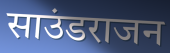
साउंडराजन